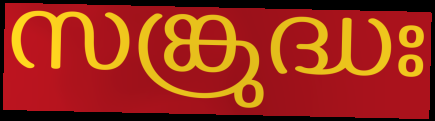
സങ്ക്രുദ്ധഃ